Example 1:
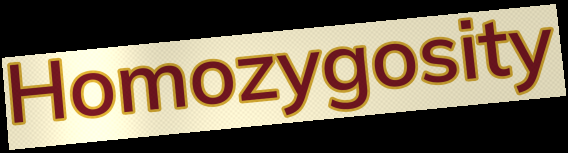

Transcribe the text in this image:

Homozygosity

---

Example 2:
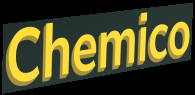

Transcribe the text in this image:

Chemico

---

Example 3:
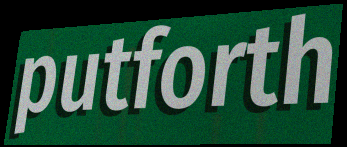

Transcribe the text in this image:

putforth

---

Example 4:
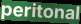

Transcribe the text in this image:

peritonal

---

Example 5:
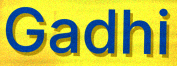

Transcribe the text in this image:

Gadhi